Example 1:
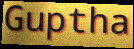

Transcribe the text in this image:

Guptha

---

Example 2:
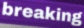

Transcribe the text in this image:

breaking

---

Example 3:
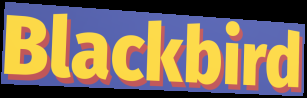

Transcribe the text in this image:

Blackbird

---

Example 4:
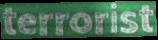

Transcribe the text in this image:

terrorist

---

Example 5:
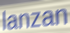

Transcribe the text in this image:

lanzan